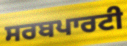
ਸਰਬਪਾਰਟੀ